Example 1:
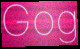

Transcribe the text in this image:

Gog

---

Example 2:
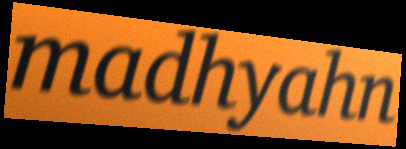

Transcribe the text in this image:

madhyahn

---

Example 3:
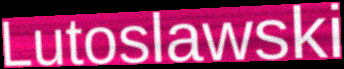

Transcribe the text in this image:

Lutoslawski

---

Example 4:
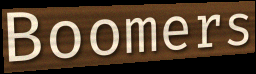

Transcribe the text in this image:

Boomers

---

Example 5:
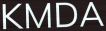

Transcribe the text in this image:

KMDA